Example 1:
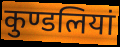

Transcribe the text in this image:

कुण्डलियां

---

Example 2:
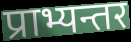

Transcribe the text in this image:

प्राभ्यन्तर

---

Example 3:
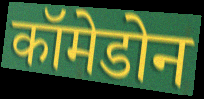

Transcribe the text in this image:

कॉमेडोन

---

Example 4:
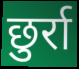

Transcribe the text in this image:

छुर्रा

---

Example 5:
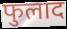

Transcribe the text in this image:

फुलाद